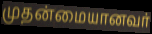
முதன்மையானவர்